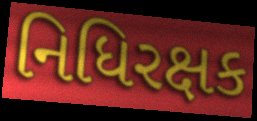
નિધિરક્ષક